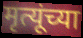
मृत्यूंच्या